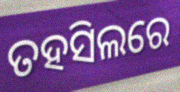
ତହସିଲରେ